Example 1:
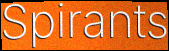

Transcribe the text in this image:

Spirants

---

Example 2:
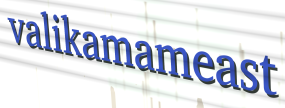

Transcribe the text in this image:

valikamameast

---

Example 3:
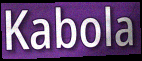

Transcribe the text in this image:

Kabola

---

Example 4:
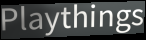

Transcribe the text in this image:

Playthings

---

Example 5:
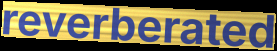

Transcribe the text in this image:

reverberated